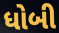
ધોબી